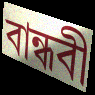
বান্ধবী